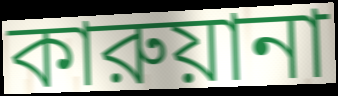
কারুয়ানা